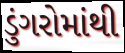
ડુંગરોમાંથી